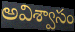
అవిశ్వాసం